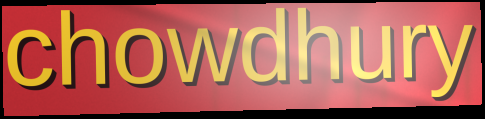
chowdhury